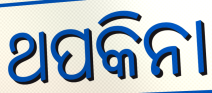
ଥପକିନା